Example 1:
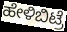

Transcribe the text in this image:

ಹೇಳಿಬಿಟ್ರೆ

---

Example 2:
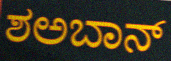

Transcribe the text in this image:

ಶಅಬಾನ್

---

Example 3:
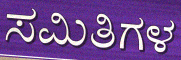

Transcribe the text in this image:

ಸಮಿತಿಗಳ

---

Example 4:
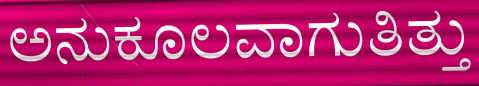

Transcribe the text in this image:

ಅನುಕೂಲವಾಗುತಿತ್ತು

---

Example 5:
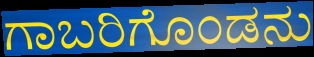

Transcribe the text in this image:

ಗಾಬರಿಗೊಂಡನು